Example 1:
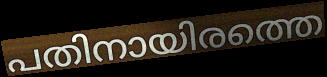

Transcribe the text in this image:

പതിനായിരത്തെ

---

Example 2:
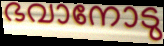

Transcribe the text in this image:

ഭവാനോടു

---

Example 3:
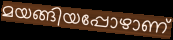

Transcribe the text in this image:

മയങ്ങിയപ്പോഴാണ്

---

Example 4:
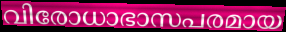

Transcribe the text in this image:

വിരോധാഭാസപരമായ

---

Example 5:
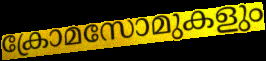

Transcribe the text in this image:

ക്രോമസോമുകളും